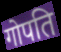
गोपति